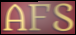
AFS